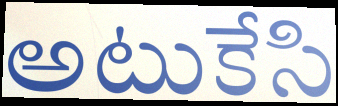
అటుకేసి